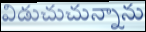
విడుచుచున్నాను